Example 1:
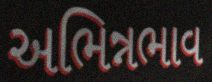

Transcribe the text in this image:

અભિન્નભાવ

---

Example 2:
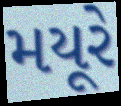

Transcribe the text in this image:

મયૂરે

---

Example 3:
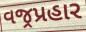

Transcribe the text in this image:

વજ્રપ્રહાર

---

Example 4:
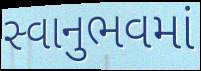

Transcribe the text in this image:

સ્વાનુભવમાં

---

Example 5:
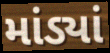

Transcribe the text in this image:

માંડ્યાં